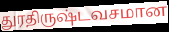
துரதிருஷ்டவசமான